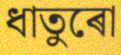
ধাতুৰো